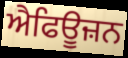
ਐਫਿਊਜ਼ਨ